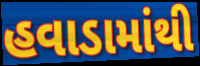
હવાડામાંથી